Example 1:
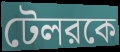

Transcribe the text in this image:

টেলরকে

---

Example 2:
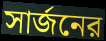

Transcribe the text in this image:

সার্জনের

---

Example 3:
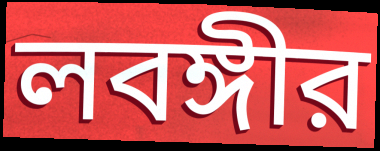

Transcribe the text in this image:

লবঙ্গীর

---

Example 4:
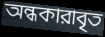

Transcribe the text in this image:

অন্ধকারাবৃত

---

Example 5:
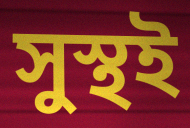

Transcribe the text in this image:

সুস্থই